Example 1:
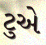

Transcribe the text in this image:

ટુએ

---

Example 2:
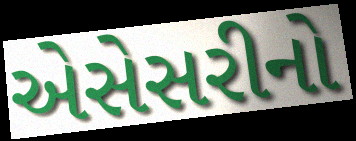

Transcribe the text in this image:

એસેસરીનો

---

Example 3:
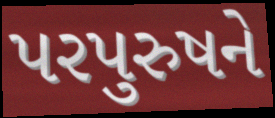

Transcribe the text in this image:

પરપુરુષને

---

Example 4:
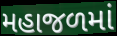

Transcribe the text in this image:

મહાજળમાં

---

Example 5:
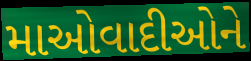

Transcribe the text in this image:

માઓવાદીઓને